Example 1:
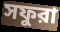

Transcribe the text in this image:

সফুরা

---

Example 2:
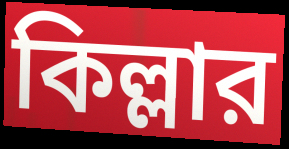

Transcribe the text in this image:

কিল্লার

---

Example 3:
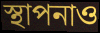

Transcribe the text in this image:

স্থাপনাও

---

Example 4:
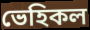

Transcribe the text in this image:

ভেহিকল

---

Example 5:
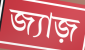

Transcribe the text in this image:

জ্যাজ়